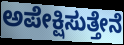
ಅಪೇಕ್ಷಿಸುತ್ತೇನೆ